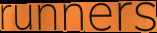
runners